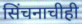
सिंचनाचीही